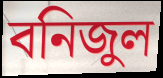
বনিজুল